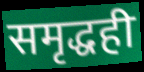
समृद्धही